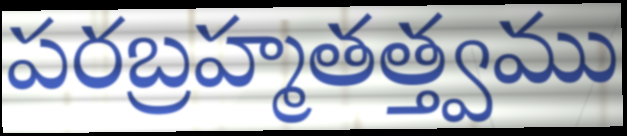
పరబ్రహ్మతత్త్వము